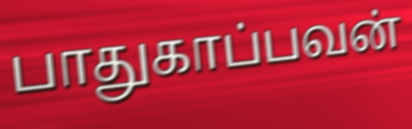
பாதுகாப்பவன்